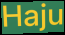
Haju